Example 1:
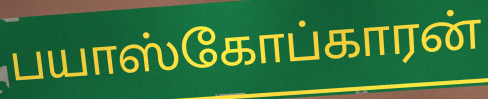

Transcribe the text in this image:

பயாஸ்கோப்காரன்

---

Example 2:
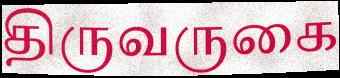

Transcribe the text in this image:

திருவருகை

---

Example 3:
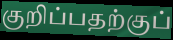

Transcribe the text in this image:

குறிப்பதற்குப்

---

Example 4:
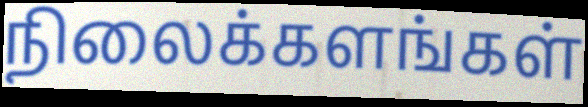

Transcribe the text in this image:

நிலைக்களங்கள்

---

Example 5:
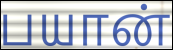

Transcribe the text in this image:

பயான்